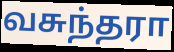
வசுந்தரா